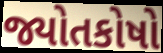
જ્યોતકોષો